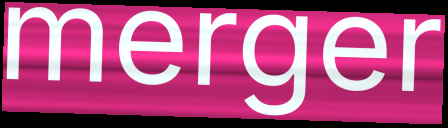
merger